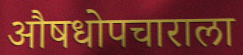
औषधोपचाराला